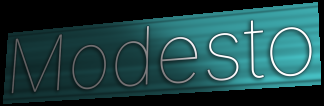
Modesto